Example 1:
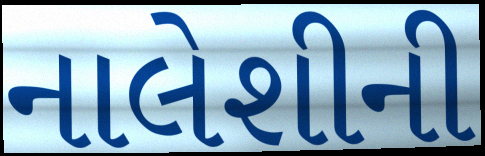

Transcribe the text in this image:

નાલેશીની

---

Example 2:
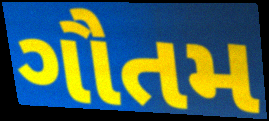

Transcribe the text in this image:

ગૌતમ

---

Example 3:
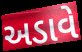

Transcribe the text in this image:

અડાવે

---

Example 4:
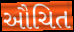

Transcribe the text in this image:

ઔચિત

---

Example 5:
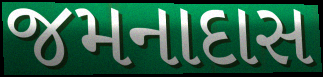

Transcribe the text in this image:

જમનાદાસ